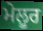
ਮੇਲੂਰ